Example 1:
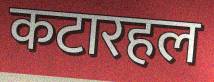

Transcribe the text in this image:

कटारहल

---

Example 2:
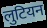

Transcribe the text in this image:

लुटियन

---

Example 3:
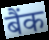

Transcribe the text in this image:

बैंक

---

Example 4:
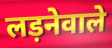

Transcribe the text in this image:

लड़नेवाले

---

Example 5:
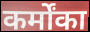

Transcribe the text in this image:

कर्मोंका